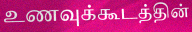
உணவுக்கூடத்தின்